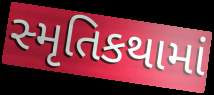
સ્મૃતિકથામાં